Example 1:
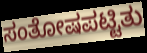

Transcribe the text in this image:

ಸಂತೋಷಪಟ್ಟಿತು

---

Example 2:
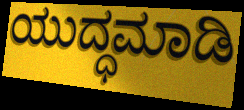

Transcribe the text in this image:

ಯುದ್ಧಮಾಡಿ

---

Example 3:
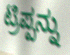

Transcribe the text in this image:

ಟ್ರಿಪ್ಪನ್ನು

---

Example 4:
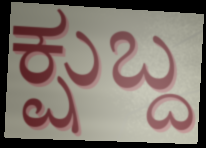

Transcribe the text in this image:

ಕ್ಷುಬ್ದ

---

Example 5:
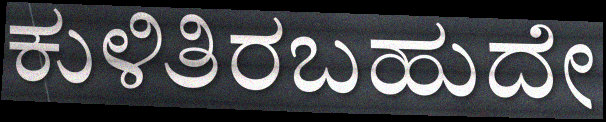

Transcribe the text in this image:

ಕುಳಿತಿರಬಹುದೇ